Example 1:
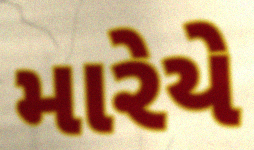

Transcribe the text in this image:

મારેયે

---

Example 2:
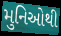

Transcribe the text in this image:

મુનિઓથી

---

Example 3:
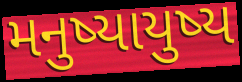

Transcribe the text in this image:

મનુષ્યાયુષ્ય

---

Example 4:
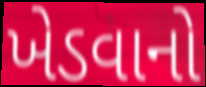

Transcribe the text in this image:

ખેડવાનો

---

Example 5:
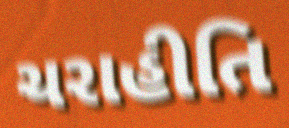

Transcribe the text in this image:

ચરાહીતિ